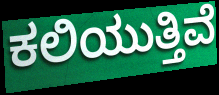
ಕಲಿಯುತ್ತಿವೆ